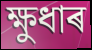
ক্ষুধাৰ